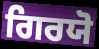
ਗਿਰਯੋ